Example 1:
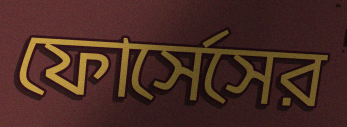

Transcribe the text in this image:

ফোর্সেসের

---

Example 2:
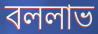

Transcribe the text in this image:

বললাভ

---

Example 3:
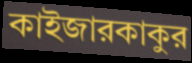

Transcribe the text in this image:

কাইজারকাকুর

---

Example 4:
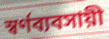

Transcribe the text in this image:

স্বর্ণব্যবসায়ী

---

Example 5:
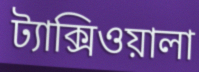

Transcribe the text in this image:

ট্যাক্সিওয়ালা